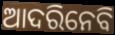
ଆଦରିନେବି